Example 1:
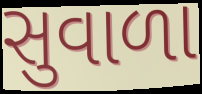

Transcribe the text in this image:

સુવાળા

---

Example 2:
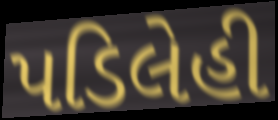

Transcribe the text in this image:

પડિલેહી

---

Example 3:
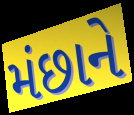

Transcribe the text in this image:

મંછાને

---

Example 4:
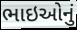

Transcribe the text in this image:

ભાઇઓનું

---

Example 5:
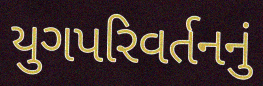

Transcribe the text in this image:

યુગપરિવર્તનનું